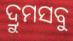
ଦ୍ରୁମସବୁ